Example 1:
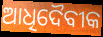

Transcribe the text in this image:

ଆଧିଦୈବୀକ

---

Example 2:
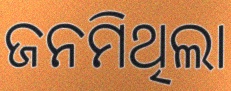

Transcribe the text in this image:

ଜନମିଥିଲା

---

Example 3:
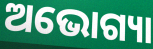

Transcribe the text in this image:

ଅଭୋଗ୍ୟା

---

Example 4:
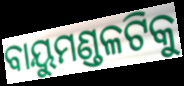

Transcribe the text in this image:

ବାୟୁମଣ୍ଡଳଟିକୁ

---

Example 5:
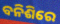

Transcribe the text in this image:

ବନିଶିରେ